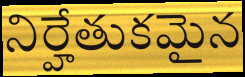
నిర్హేతుకమైన